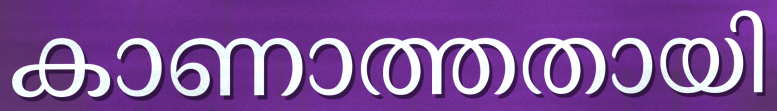
കാണാത്തതായി